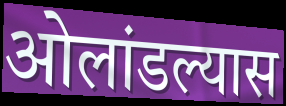
ओलांडल्यास